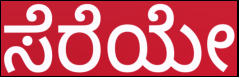
ಸೆರೆಯೇ